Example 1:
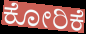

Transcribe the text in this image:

ಕೋರಿಕೆ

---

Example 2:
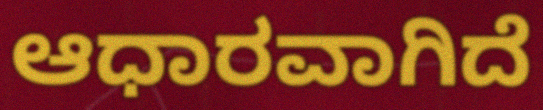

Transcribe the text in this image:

ಆಧಾರವಾಗಿದೆ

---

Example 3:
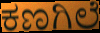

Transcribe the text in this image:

ಕಣಗಿಲೆ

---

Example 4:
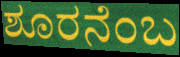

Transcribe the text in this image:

ಶೂರನೆಂಬ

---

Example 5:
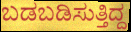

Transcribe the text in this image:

ಬಡಬಡಿಸುತ್ತಿದ್ದ